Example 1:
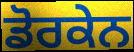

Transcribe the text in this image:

ਡੋਰਕੇਨ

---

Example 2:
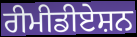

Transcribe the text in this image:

ਰੀਮੀਡੀਏਸ਼ਨ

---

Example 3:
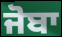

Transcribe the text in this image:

ਜੋਬਾ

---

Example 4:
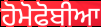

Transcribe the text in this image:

ਹੋਮੋਫੋਬੀਆ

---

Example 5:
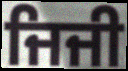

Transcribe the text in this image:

ਜਿਜੀ